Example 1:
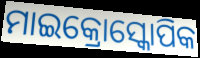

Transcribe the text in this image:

ମାଇକ୍ରୋସ୍କୋପିକ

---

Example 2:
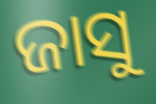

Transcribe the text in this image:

ଜାସୁ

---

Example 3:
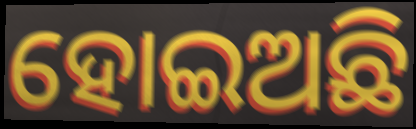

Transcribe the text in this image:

ହୋଇଅଛି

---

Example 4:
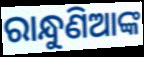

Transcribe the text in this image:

ରାନ୍ଧୁଣିଆଙ୍କ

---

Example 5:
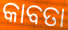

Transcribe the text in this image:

କାବତା